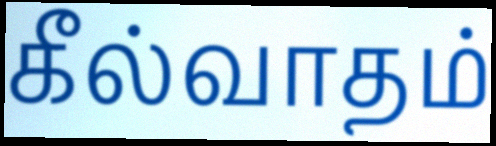
கீல்வாதம்